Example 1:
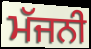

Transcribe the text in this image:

ਮੱਜਨੀ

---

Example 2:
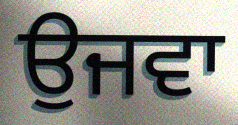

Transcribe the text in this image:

ਉਜਵਾ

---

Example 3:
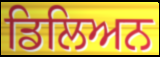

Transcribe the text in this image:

ਡਿਲਿਅਨ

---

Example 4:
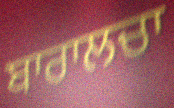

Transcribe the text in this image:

ਬਾਰਾਲਚਾ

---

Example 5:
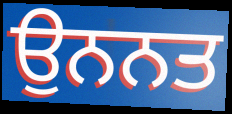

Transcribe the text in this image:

ਉਨਨਤ